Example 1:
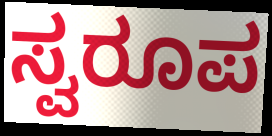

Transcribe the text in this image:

ಸ್ವರೂಪ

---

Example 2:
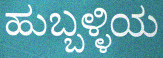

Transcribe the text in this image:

ಹುಬ್ಬಳ್ಳಿಯ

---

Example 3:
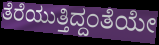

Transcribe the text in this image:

ತೆರೆಯುತ್ತಿದ್ದಂತೆಯೇ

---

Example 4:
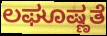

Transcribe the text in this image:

ಲಘೂಷ್ಣತೆ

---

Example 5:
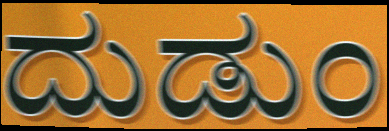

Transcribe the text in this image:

ದುಡುಂ